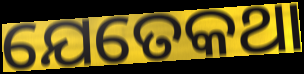
ଯେତେକଥା